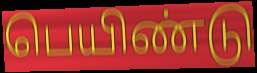
பெயிண்டு